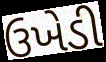
ઉખેડી